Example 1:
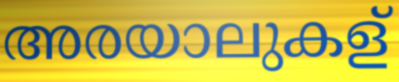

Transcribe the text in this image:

അരയാലുകള്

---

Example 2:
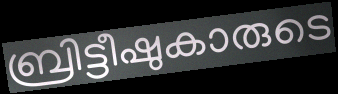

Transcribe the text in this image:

ബ്രിട്ടീഷുകാരുടെ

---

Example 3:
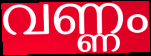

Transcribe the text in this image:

വണ്ണം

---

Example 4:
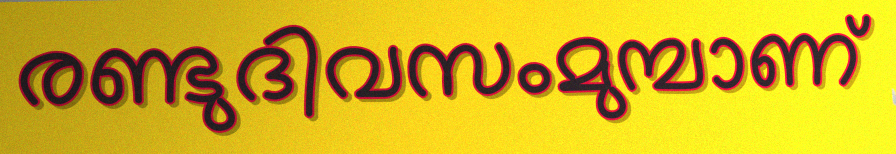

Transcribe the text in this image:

രണ്ടുദിവസംമുമ്പാണ്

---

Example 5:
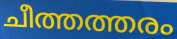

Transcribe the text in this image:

ചീത്തത്തരം